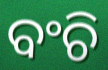
ବଂଚି